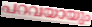
പറവയായും